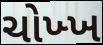
ચોખ્ખ